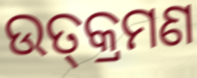
ଉତ୍‍କ୍ରମଣ